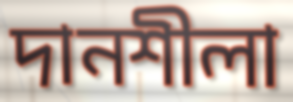
দানশীলা